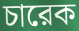
চারেক